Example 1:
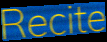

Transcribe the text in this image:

Recite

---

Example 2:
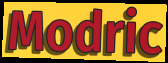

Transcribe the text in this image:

Modric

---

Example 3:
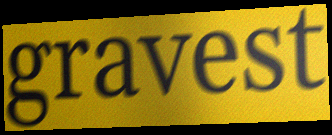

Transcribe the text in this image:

gravest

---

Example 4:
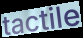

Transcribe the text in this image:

tactile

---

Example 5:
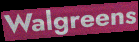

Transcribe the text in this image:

Walgreens